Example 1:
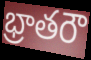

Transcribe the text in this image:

భ్రాతరౌ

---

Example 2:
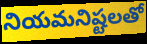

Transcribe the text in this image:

నియమనిష్టలతో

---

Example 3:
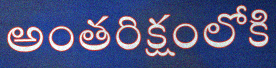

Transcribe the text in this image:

అంతరిక్షంలోకి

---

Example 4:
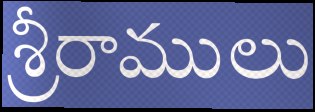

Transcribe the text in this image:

శ్రీరాములు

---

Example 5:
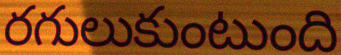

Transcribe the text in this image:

రగులుకుంటుంది